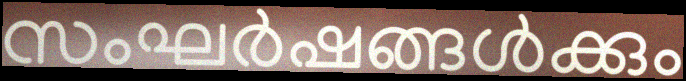
സംഘർഷങ്ങൾക്കും